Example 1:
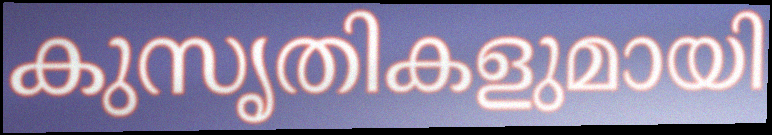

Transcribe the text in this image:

കുസൃതികളുമായി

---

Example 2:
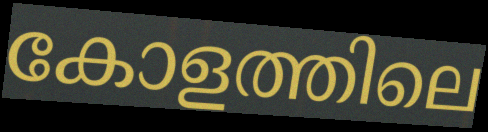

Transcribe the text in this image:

കോളത്തിലെ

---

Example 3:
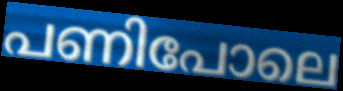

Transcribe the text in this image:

പണിപോലെ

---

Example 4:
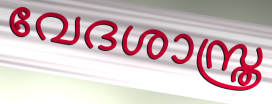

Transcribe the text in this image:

വേദശാസ്ത്ര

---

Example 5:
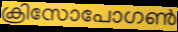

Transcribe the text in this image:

ക്രിസോപോഗൺ